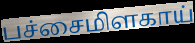
பச்சைமிளகாய்